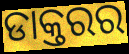
ଡାକ୍ତରର